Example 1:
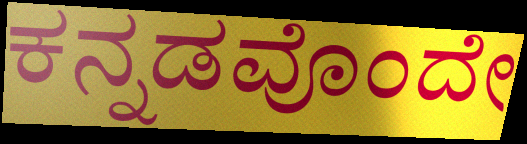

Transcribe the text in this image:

ಕನ್ನಡವೊಂದೇ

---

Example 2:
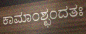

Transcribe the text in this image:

ಕಾಮಾಂಶ್ಛಂದತಃ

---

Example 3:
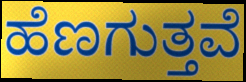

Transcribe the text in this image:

ಹೆಣಗುತ್ತವೆ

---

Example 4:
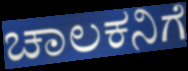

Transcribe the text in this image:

ಚಾಲಕನಿಗೆ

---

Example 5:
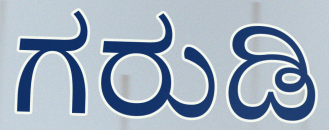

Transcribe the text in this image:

ಗರುಡಿ